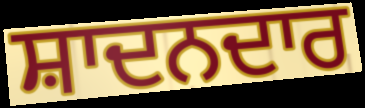
ਸ਼ਾਦਨਦਾਰ